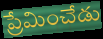
ప్రేమించేడు